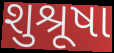
શુશ્રૂષા